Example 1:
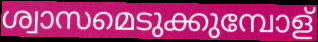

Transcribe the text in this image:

ശ്വാസമെടുക്കുമ്പോള്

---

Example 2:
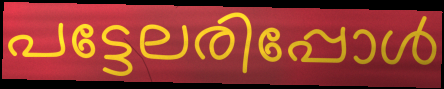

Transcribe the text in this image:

പട്ടേലരിപ്പോൾ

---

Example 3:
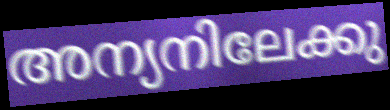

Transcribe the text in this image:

അന്യനിലേക്കു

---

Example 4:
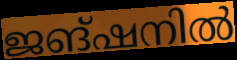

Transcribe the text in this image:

ജങ്ഷനിൽ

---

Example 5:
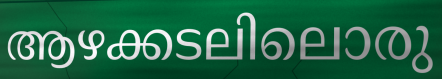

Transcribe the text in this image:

ആഴക്കടലിലൊരു